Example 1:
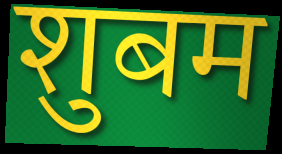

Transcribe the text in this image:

शुबम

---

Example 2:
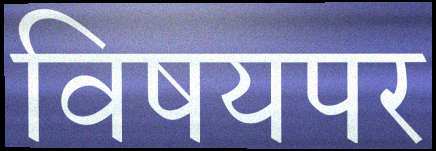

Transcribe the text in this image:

विषयपर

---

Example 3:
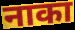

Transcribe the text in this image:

नाका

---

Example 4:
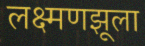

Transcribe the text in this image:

लक्ष्मणझूला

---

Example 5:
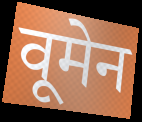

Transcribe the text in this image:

वूमेन